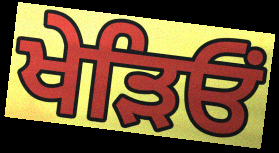
ਖੇੜਿਓਂ